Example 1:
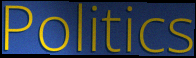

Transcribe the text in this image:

Politics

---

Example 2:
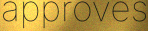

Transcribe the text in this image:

approves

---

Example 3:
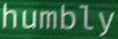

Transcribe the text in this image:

humbly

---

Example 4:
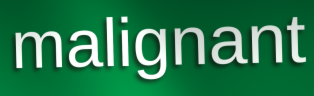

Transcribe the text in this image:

malignant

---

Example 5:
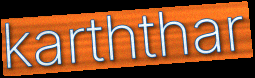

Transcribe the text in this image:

karththar